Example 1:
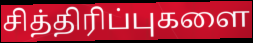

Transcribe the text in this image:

சித்திரிப்புகளை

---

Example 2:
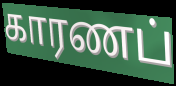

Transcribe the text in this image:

காரணப்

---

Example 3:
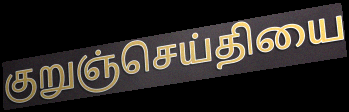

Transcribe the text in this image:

குறுஞ்செய்தியை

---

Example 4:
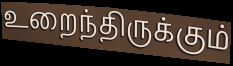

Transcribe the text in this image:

உறைந்திருக்கும்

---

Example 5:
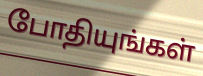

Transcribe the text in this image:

போதியுங்கள்